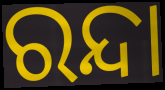
ରନ୍ଦା